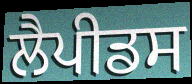
ਲੈਪੀਡਸ